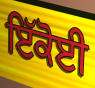
ਇੱਕੋਈ